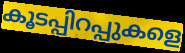
കൂടപ്പിറപ്പുകളെ